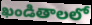
ఖండితాలలో